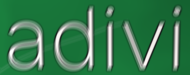
adivi